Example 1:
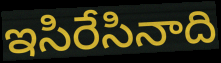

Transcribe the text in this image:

ఇసిరేసినాది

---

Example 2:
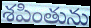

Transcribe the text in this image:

శపింతును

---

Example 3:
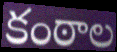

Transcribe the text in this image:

కంఠాల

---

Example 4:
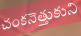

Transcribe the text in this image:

చంకనెత్తుకుని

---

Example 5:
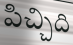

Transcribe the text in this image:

పిచ్చిది